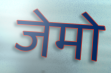
जेमो